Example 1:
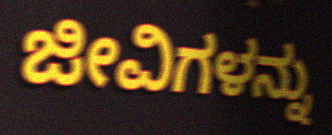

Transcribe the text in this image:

ಜೀವಿಗಳನ್ನು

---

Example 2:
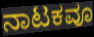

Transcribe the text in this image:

ನಾಟಕವೂ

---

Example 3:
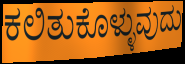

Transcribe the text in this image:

ಕಲಿತುಕೊಳ್ಳುವುದು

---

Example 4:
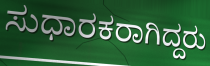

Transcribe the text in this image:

ಸುಧಾರಕರಾಗಿದ್ದರು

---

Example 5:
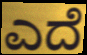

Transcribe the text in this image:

ಎದೆ